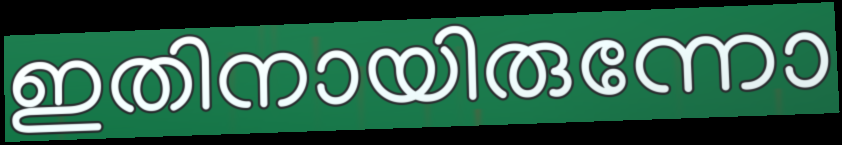
ഇതിനായിരുന്നോ